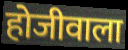
होजीवाला